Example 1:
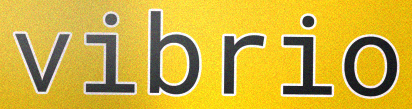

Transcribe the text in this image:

vibrio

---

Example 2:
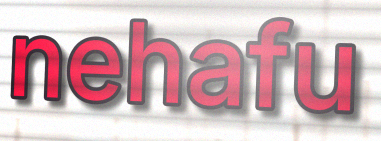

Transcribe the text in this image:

nehafu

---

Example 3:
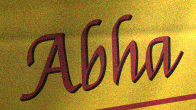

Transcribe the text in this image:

Abha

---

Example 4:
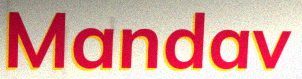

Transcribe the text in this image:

Mandav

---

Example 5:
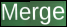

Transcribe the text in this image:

Merge